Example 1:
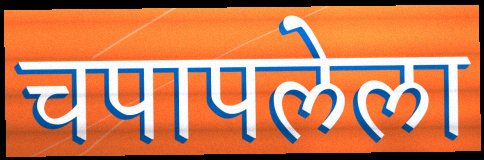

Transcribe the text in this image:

चपापलेला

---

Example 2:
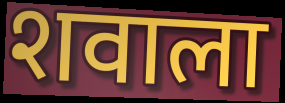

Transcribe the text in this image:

शवाला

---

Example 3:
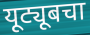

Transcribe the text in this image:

यूट्यूबचा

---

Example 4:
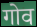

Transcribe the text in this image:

गोव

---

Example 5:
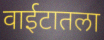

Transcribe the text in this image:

वाईटातला